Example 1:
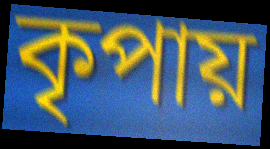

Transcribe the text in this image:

কৃপায়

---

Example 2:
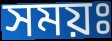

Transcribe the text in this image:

সময়ঃ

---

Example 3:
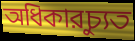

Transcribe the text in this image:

অধিকারচ্যুত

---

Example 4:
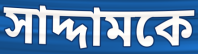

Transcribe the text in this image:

সাদ্দামকে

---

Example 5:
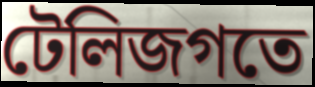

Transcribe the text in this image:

টেলিজগতে